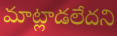
మాట్లాడలేదని